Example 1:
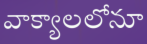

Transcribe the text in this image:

వాక్యాలలోనూ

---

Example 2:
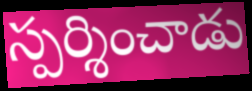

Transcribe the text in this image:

స్పర్శించాడు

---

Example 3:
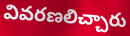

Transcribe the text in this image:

వివరణలిచ్చారు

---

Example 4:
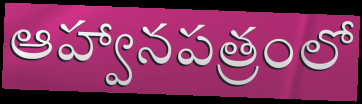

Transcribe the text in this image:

ఆహ్వానపత్రంలో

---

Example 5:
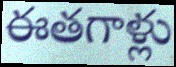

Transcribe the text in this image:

ఈతగాళ్లు